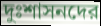
দুঃশাসনদের